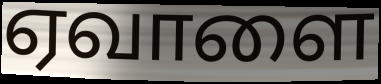
ஏவாளை